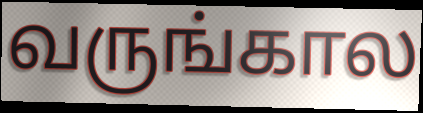
வருங்கால